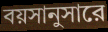
বয়সানুসারে